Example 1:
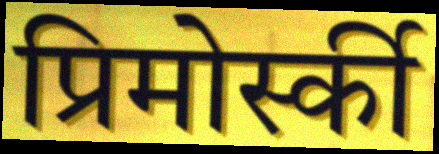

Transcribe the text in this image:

प्रिमोर्स्की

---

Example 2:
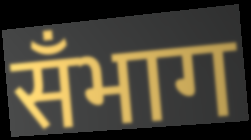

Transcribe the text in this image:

सँभाग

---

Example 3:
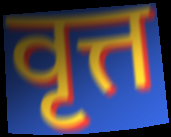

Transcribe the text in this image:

वृत्त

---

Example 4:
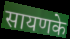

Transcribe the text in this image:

सायणके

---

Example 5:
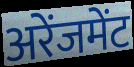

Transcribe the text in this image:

अरेंजमेंट